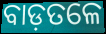
ବାଡ଼ତଳେ